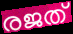
രജത്